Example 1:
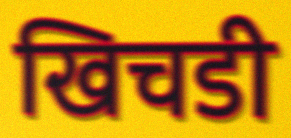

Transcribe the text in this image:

खिचडी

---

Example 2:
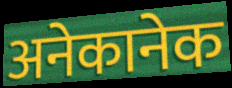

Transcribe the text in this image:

अनेकानेक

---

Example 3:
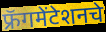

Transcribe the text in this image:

फ्रॅगमेंटेशनचे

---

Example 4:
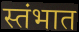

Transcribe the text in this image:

स्तंभात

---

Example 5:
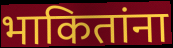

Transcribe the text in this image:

भाकितांना